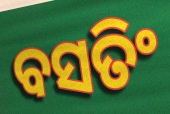
ବସତିଂ